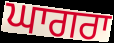
ਘਾਗਰਾ